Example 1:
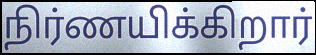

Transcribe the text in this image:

நிர்ணயிக்கிறார்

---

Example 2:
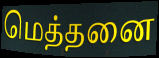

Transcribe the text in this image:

மெத்தனை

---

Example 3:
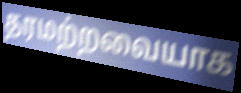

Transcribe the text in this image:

தரமற்றவையாக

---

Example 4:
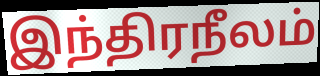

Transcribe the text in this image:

இந்திரநீலம்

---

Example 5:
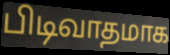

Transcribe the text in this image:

பிடிவாதமாக